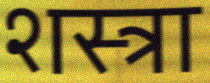
शस्त्रा